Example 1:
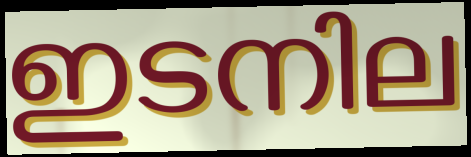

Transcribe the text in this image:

ഇടനില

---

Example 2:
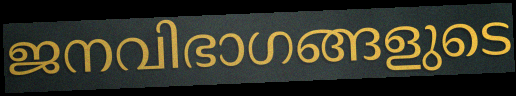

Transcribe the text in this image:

ജനവിഭാഗങ്ങളുടെ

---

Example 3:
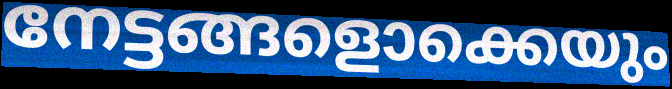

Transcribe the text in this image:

നേട്ടങ്ങളൊക്കെയും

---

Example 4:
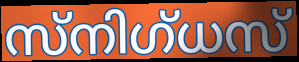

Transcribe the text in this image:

സ്നിഗ്ധസ്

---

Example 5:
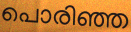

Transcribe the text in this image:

പൊരിഞ്ഞ